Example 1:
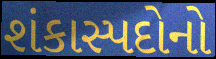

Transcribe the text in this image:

શંકાસ્પદોનો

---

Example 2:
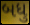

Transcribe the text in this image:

બધુ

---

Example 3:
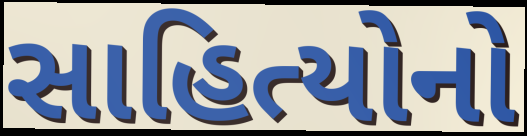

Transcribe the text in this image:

સાહિત્યોનો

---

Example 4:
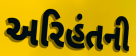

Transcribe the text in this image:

અરિહંતની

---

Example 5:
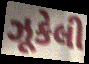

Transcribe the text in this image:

ઝૂકેલી